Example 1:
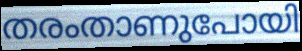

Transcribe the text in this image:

തരംതാണുപോയി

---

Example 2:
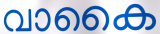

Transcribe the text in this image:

വാകൈ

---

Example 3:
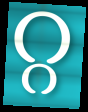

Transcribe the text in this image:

റ്റ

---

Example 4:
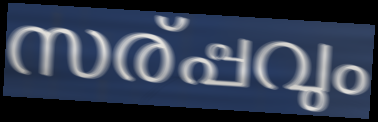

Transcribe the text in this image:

സര്പ്പവും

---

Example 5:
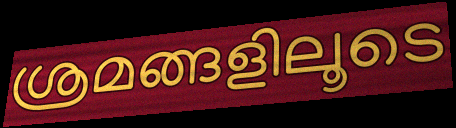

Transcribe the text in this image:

ശ്രമങ്ങളിലൂടെ